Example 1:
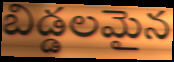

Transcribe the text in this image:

బిడ్డలమైన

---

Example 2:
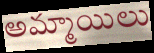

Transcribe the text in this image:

అమ్మాయిలు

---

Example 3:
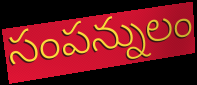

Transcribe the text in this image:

సంపన్నులం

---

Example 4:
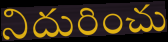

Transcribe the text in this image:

నిదురించు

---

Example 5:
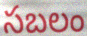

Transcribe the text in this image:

సబలం